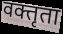
वक्तृता